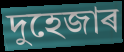
দুহেজাৰ